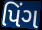
પિંગ